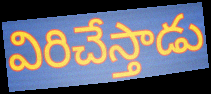
విరిచేస్తాడు